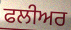
ਫਲੀਅਰ